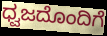
ಧ್ವಜದೊಂದಿಗೆ